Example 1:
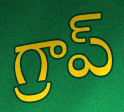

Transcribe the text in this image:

గ్రాప్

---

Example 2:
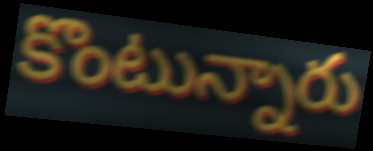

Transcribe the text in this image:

కొంటున్నారు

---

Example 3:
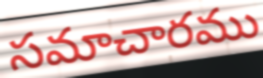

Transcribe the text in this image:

సమాచారము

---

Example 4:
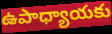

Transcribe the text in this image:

ఉపాధ్యాయకు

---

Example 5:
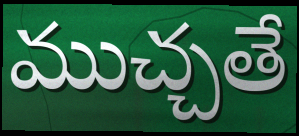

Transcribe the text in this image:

ముచ్చతే